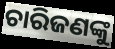
ଚାରିଜଣଙ୍କୁ